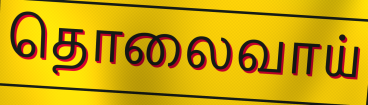
தொலைவாய்